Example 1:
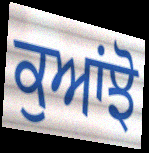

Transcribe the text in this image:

ਕੁਆਂਝੋ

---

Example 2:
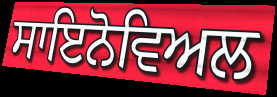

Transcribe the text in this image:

ਸਾਇਨੋਵਿਅਲ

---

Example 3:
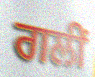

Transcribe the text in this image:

ਗਲੀਂ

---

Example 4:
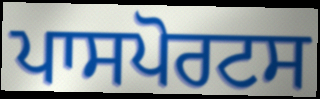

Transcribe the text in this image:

ਪਾਸਪੋਰਟਸ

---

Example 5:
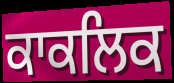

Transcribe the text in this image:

ਕਾਕਲਿਕ